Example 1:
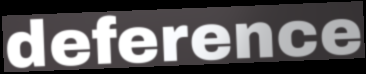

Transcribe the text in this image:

deference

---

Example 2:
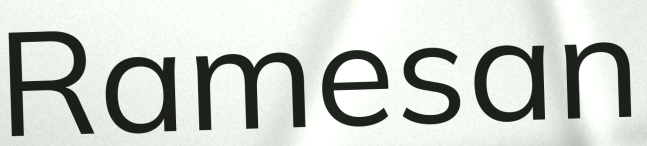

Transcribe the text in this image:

Ramesan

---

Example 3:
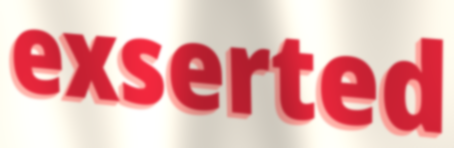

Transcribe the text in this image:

exserted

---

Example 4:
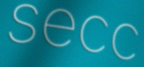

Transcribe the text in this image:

secc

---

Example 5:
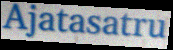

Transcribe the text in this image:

Ajatasatru